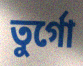
তুর্গো